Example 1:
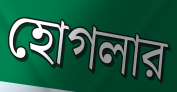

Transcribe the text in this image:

হোগলার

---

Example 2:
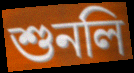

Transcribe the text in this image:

শুনলি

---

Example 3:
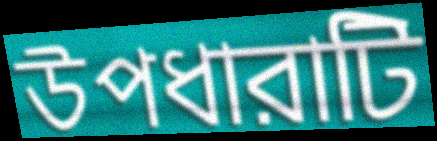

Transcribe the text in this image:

উপধারাটি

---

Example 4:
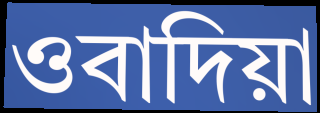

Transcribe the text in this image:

ওবাদিয়া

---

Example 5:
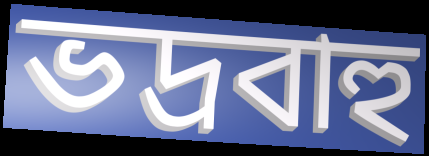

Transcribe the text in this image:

ভদ্রবাহু